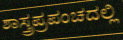
ಶಾಸ್ತ್ರಪ್ರಪಂಚದಲ್ಲಿ